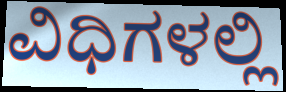
ವಿಧಿಗಳಲ್ಲಿ